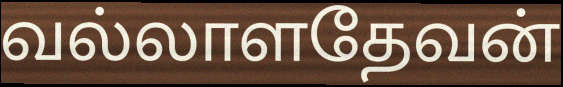
வல்லாளதேவன்